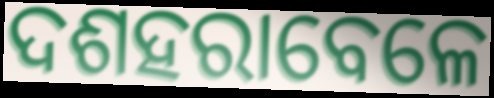
ଦଶହରାବେଳେ